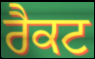
ਰੈਕਟ